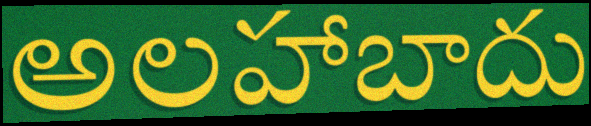
అలహాబాదు